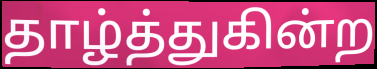
தாழ்த்துகின்ற